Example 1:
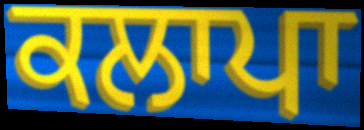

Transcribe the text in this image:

ਕਲਾਪਾ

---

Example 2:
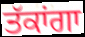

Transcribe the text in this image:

ਤੱਕਾਂਗਾ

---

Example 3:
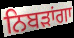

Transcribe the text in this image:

ਨਿਬੜਾਂਗਾ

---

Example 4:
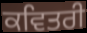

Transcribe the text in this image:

ਕਵਿਤਰੀ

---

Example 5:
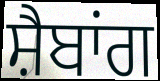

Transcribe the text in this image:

ਸ਼ੈਬਾਂਗ